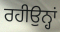
ਰਹੀਉਨ੍ਹਾਂ